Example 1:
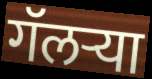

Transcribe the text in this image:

गॅलऱ्या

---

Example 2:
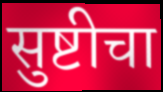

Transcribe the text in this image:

सुष्टीचा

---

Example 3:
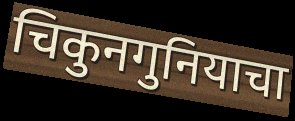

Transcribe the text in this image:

चिकुनगुनियाचा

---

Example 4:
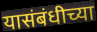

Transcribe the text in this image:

यासंबंधीच्या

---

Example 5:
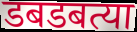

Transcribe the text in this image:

डबडबत्या